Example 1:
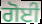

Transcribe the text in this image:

ਗੋਈ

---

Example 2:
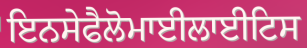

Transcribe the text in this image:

ਇਨਸੇਫੈਲੋਮਾਈਲਾਈਟਿਸ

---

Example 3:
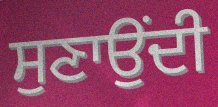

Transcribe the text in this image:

ਸੁਣਾਉਂਦੀ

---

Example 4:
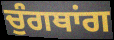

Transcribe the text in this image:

ਚੁੰਗਥਾਂਗ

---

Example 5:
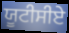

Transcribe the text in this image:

ਯੂਟੀਸੀਏ